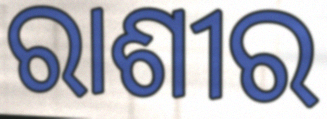
ରାଶୀର